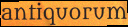
antiquorum